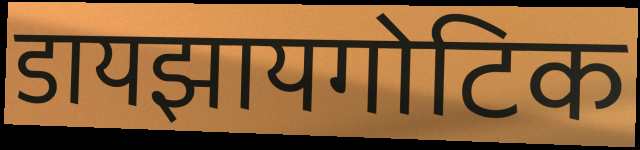
डायझायगोटिक